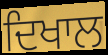
ਦਿਖਾਲ